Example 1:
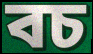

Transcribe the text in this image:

বচ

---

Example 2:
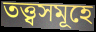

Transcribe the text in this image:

তত্ত্বসমূহে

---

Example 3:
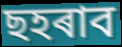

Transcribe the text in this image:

ছহৰাব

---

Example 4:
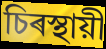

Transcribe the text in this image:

চিৰস্থায়ী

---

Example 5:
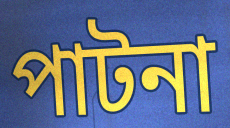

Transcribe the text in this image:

পাটনা